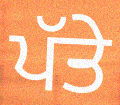
ਪੱਤੇ